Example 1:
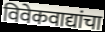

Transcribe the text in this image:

विवेकवाद्यांचा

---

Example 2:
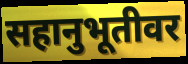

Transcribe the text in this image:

सहानुभूतीवर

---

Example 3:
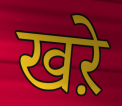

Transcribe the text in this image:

खऱे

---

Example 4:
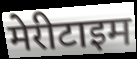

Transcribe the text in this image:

मेरीटाइम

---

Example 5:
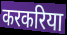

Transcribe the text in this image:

करकरिया